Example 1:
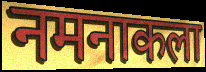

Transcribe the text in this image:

नमनाकला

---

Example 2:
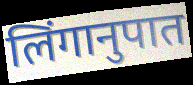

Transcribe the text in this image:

लिंगानुपात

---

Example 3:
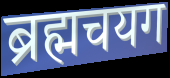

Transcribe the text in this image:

ब्रह्मचयग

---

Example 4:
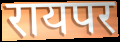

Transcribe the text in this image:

रायपर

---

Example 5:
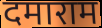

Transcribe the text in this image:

दमाराम